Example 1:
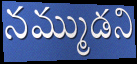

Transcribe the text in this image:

నమ్ముడని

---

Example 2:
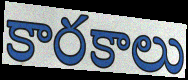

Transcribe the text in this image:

కారకాలు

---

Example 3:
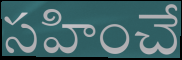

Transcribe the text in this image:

సహించే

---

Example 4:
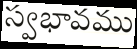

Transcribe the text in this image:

స్వభావము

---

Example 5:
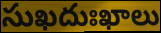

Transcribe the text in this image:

సుఖదుఃఖాలు